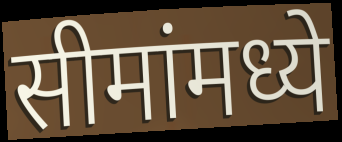
सीमांमध्ये